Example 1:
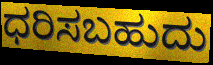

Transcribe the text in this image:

ಧರಿಸಬಹುದು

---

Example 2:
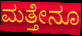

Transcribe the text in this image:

ಮತ್ತೇನೂ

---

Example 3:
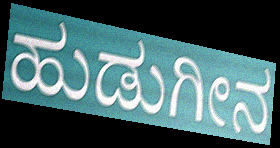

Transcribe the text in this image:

ಹುಡುಗೀನ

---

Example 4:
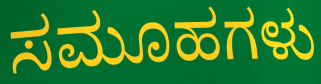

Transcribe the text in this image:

ಸಮೂಹಗಳು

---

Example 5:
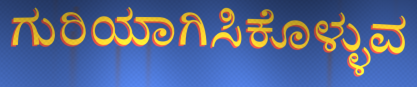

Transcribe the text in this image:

ಗುರಿಯಾಗಿಸಿಕೊಳ್ಳುವ